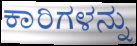
ಕಾರಿಗಳನ್ನು